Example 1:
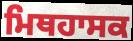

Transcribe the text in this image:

ਮਿਥਹਾਸਕ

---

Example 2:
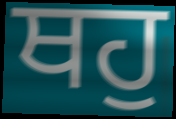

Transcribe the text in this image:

ਥਹੁ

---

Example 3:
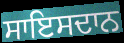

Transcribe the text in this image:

ਸਾਇਸਦਾਨ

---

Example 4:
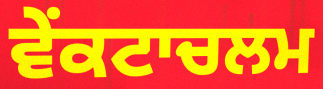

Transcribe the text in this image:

ਵੇਂਕਟਾਚਲਮ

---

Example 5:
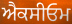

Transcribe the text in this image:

ਐਕਸੀਓਮ